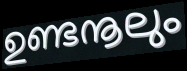
ഉണ്ടനൂലും